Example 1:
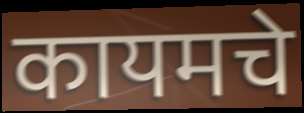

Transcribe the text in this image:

कायमचे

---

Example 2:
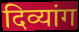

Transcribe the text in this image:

दिव्यांग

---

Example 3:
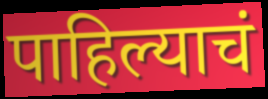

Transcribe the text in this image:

पाहिल्याचं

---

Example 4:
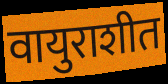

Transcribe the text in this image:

वायुराशीत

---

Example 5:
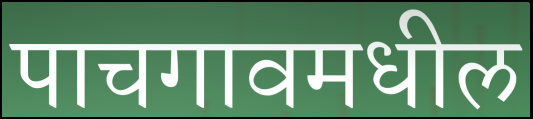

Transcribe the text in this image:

पाचगावमधील